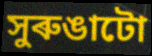
সুৰুঙাটো